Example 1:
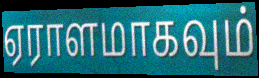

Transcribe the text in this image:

ஏராளமாகவும்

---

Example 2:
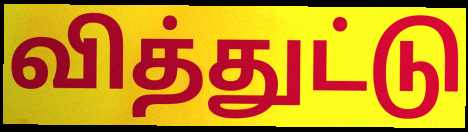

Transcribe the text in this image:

வித்துட்டு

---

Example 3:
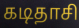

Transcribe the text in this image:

கடிதாசி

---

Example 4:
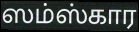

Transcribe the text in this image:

ஸம்ஸ்கார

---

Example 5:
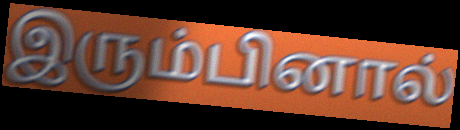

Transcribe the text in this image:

இரும்பினால்